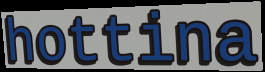
hottina